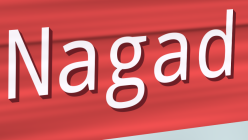
Nagad